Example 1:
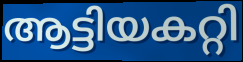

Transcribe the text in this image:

ആട്ടിയകറ്റി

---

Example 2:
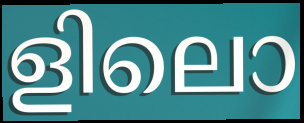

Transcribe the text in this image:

ളിലൊ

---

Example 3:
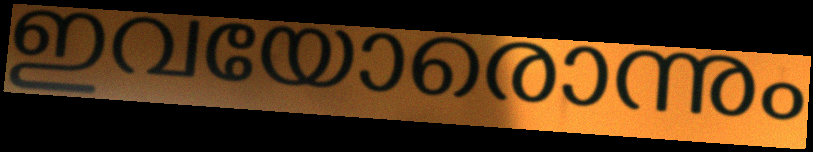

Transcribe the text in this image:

ഇവയോരൊന്നും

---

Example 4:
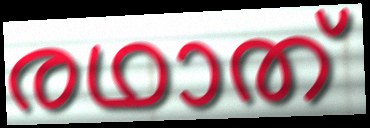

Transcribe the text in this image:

രഥാത്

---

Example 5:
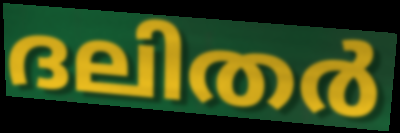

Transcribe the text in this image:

ദലിതർ